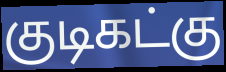
குடிகட்கு